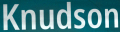
Knudson